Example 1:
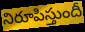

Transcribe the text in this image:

నిరూపిస్తుందీ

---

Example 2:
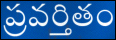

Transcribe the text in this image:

ప్రవర్తితం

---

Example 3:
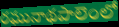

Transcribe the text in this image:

రఘునాథపాలెంలో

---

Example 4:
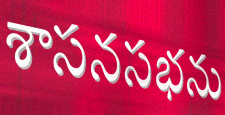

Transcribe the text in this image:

శాసనసభను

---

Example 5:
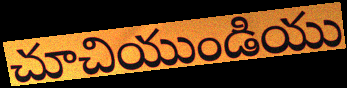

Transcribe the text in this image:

చూచియుండియు